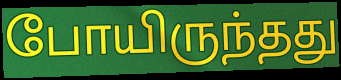
போயிருந்தது